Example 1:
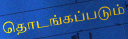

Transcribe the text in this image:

தொடங்கப்படும்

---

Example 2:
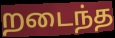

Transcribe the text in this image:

றடைந்த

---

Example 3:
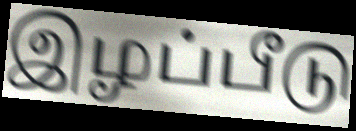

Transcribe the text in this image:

இழப்பீடு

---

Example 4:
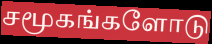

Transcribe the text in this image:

சமூகங்களோடு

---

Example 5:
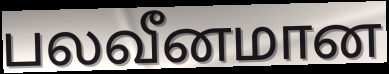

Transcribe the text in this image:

பலவீனமான